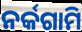
ନର୍କଗାମି